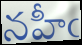
నహీఁ